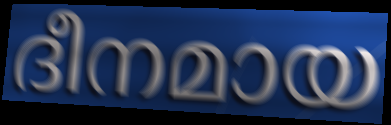
ദീനമായ